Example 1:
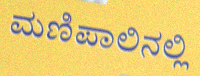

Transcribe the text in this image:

ಮಣಿಪಾಲಿನಲ್ಲಿ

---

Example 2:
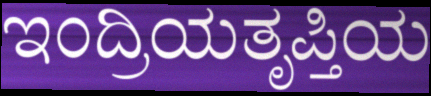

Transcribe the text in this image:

ಇಂದ್ರಿಯತೃಪ್ತಿಯ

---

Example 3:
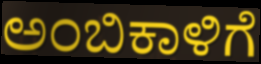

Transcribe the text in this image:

ಅಂಬಿಕಾಳಿಗೆ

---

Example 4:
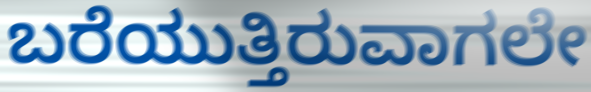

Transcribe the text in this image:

ಬರೆಯುತ್ತಿರುವಾಗಲೇ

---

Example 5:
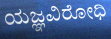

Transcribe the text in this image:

ಯಜ್ಞವಿರೋಧಿ